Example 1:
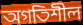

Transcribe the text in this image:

অগতিশীল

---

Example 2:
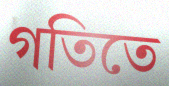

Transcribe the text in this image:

গতিতে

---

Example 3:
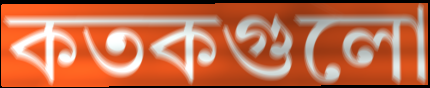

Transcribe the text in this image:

কতকগুলো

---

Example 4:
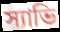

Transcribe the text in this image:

স্যাভি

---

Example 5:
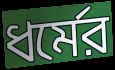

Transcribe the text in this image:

ধর্মের